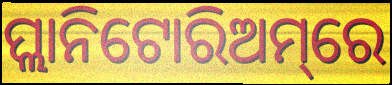
ପ୍ଲାନିଟୋରିଅମ୍‌ରେ